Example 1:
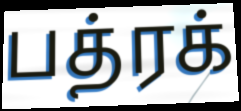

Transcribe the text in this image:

பத்ரக்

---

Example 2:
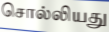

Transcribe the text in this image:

சொல்லியது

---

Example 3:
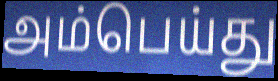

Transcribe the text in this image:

அம்பெய்து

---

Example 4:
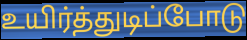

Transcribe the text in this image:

உயிர்த்துடிப்போடு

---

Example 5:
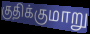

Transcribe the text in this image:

குதிக்குமாறு